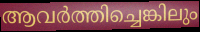
ആവർത്തിച്ചെങ്കിലും